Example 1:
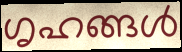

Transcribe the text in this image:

ഗൃഹങ്ങൾ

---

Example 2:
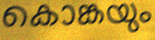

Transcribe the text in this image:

കൊങ്കയും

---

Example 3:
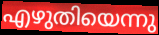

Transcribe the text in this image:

എഴുതിയെന്നു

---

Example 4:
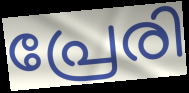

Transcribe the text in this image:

പ്രേരി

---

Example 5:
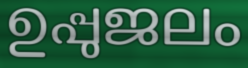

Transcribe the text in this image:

ഉപ്പുജലം